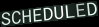
SCHEDULED